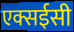
एक्सईसी